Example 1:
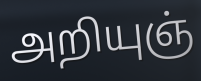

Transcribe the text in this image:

அறியுஞ்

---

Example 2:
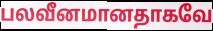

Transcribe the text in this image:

பலவீனமானதாகவே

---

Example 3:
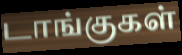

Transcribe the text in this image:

டாங்குகள்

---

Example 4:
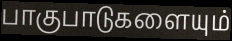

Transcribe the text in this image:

பாகுபாடுகளையும்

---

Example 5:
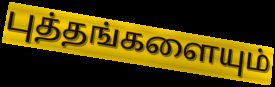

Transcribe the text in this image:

புத்தங்களையும்